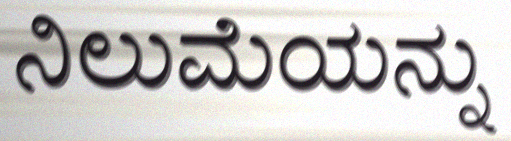
ನಿಲುಮೆಯನ್ನು